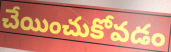
చేయించుకోవడం